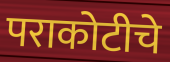
पराकोटीचे